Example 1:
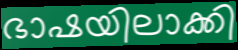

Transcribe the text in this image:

ഭാഷയിലാക്കി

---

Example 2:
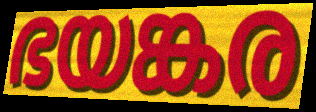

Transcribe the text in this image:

ഭയങ്കര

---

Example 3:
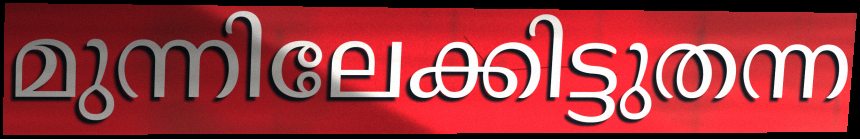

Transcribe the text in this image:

മുന്നിലേക്കിട്ടുതന്ന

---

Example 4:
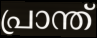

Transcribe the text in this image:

പ്രാന്ത്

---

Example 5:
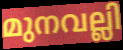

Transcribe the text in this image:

മുനവല്ലി